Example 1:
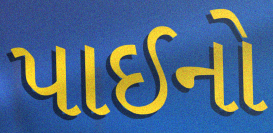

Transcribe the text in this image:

પાઈનો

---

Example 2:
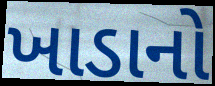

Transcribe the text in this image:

ખાડાનો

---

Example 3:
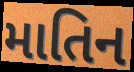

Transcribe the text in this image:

માતિન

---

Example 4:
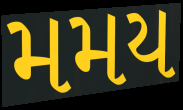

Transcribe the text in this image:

મમય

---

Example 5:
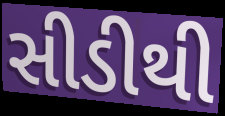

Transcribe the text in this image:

સીડીથી